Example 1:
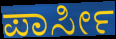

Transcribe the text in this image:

ಪಾರ್ಸೀ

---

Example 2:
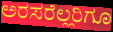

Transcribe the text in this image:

ಅರಸರೆಲ್ಲರಿಗೂ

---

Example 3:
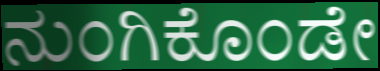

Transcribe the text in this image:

ನುಂಗಿಕೊಂಡೇ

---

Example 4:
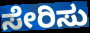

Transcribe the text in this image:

ಸೇರಿಸು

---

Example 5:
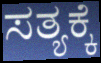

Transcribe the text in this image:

ಸತ್ಯಕ್ಕೆ